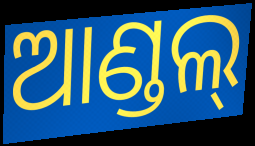
ଆଣ୍ଡଲ୍